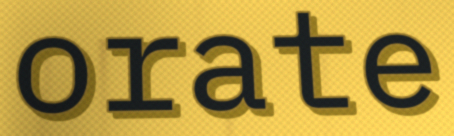
orate